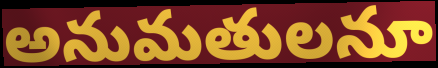
అనుమతులనూ